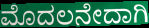
ಮೊದಲನೇದಾಗಿ